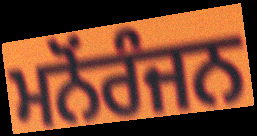
ਮਨੋਂਰੰਜਨ